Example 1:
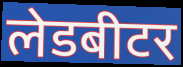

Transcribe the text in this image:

लेडबीटर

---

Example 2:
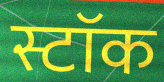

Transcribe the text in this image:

स्टॉक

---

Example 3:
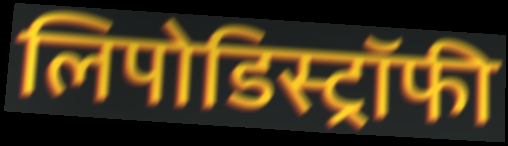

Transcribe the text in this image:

लिपोडिस्ट्रॉफी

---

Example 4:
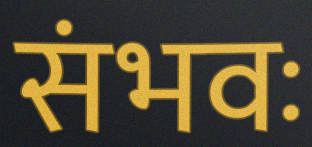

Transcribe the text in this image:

संभवः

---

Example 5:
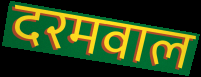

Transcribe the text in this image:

दरमवाल